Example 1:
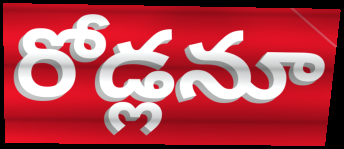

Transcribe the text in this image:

రోడ్లనూ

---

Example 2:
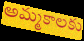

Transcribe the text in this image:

అమ్మకాలకు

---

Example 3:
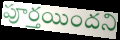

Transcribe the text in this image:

పూర్తయిందని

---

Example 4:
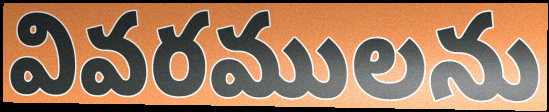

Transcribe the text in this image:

వివరములను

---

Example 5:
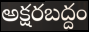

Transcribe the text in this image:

అక్షరబద్దం